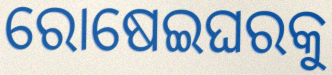
ରୋଷେଇଘରକୁ